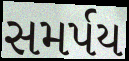
સમર્પય